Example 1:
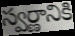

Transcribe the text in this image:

స్వర్ణానికి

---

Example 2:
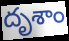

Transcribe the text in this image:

దృశాం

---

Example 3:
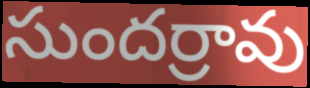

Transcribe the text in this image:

సుందర్రావు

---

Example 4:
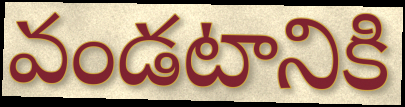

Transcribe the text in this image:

వండటానికి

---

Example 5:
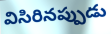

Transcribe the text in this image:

విసిరినప్పుడు